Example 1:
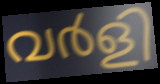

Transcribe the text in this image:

വർളി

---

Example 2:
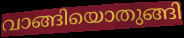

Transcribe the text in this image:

വാങ്ങിയൊതുങ്ങി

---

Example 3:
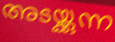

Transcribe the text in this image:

അടയ്ക്കുന്ന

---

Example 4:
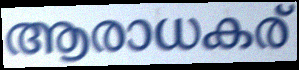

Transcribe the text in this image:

ആരാധകര്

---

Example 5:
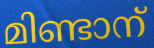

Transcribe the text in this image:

മിണ്ടാന്